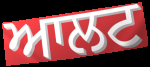
ਆਲਟ